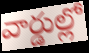
వార్డుల్లో